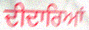
ਦੀਦਾਰਿਆਂ